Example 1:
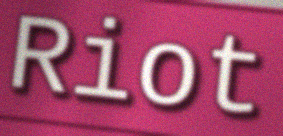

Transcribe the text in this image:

Riot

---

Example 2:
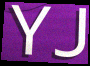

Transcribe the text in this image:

YJ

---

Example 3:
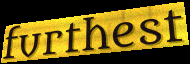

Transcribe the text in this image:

furthest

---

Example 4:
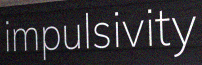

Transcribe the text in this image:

impulsivity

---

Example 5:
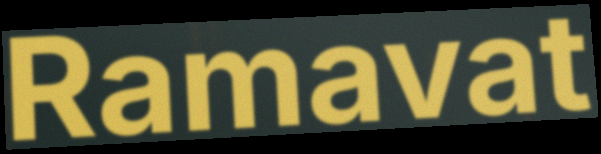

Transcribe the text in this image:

Ramavat